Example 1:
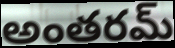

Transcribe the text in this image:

అంతరమ్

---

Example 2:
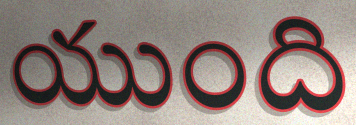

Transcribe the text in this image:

యుంది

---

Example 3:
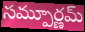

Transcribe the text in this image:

సమ్పూర్ణమ్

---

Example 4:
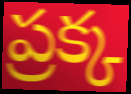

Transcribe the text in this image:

ప్రక్క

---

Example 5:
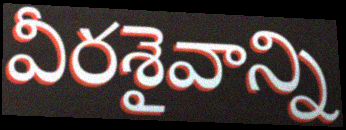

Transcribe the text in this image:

వీరశైవాన్ని